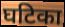
घटिका